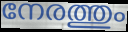
നേരത്തും